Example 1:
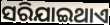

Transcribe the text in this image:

ସରିଯାଇଥାଏ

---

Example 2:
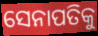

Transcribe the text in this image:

ସେନାପତିକୁ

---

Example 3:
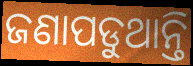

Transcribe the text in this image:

ଜଣାପଡୁଥାନ୍ତି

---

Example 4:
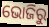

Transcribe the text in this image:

ଭୋଜିରୁ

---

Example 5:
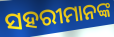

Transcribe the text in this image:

ସହରୀମାନଙ୍କ